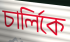
চার্লিকে